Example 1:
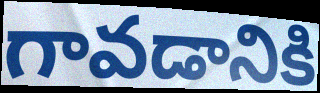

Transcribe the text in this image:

గావడానికి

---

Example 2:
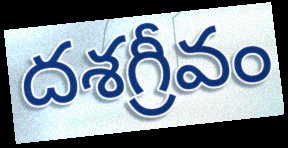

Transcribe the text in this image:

దశగ్రీవం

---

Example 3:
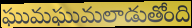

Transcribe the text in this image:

ఘుమఘుమలాడుతోంది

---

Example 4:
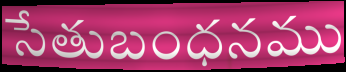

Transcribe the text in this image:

సేతుబంధనము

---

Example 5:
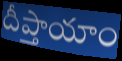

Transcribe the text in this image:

దీప్తాయాం